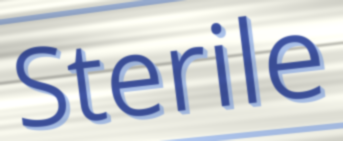
Sterile